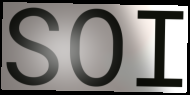
SOI